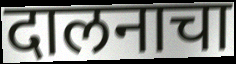
दालनाचा